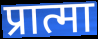
प्रात्मा